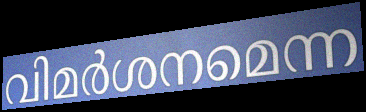
വിമർശനമെന്ന